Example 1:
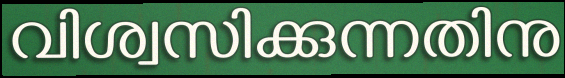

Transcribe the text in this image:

വിശ്വസിക്കുന്നതിനു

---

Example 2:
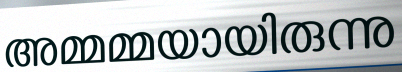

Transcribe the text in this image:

അമ്മമ്മയായിരുന്നു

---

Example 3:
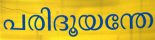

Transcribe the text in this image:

പരിദൂയന്തേ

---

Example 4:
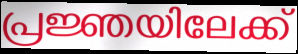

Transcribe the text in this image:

പ്രജ്ഞയിലേക്ക്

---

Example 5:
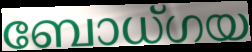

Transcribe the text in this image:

ബോധ്ഗയ